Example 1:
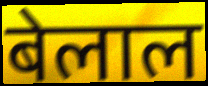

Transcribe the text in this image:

बेलाल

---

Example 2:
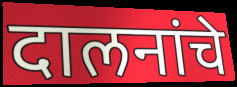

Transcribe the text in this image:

दालनांचे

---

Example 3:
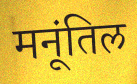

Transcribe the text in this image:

मनूंतिल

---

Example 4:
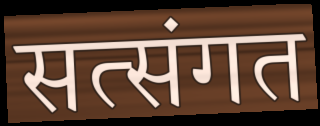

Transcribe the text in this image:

सत्संगत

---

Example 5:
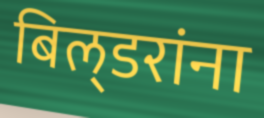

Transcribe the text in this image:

बिल्डरांना